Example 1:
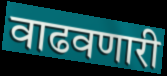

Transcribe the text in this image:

वाढवणारी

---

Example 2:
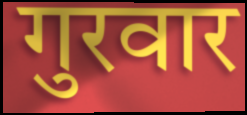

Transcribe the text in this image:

गुरवार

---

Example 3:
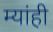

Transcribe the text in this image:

म्यांही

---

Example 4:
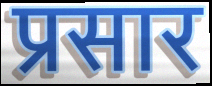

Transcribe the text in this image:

प्रसार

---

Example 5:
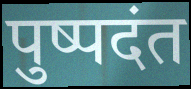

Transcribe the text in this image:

पुष्पदंत